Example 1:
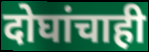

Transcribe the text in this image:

दोघांचाही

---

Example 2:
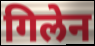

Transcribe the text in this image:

गिलेन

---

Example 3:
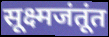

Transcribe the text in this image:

सूक्ष्मजंतूंत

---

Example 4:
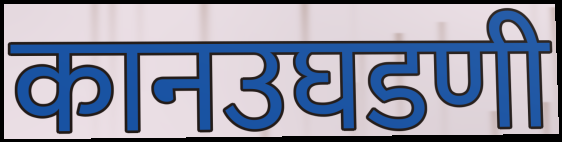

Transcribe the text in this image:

कानउघडणी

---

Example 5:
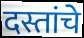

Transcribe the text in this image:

दस्तांचे